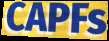
CAPFs